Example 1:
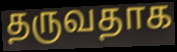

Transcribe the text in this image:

தருவதாக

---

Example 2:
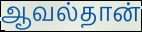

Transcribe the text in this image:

ஆவல்தான்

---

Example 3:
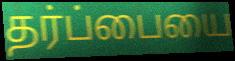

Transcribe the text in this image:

தர்ப்பையை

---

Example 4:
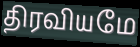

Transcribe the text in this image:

திரவியமே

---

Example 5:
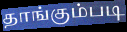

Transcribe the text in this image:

தாங்கும்படி